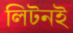
লিটনই